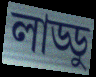
লাড্ডু